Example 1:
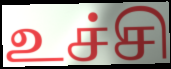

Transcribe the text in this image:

உச்சி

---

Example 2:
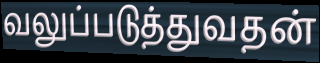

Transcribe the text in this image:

வலுப்படுத்துவதன்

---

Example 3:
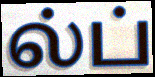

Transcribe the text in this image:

ல்ப்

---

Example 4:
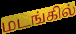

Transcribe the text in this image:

மடங்கில்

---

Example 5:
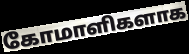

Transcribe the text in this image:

கோமாளிகளாக